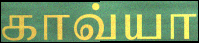
காவ்யா